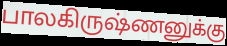
பாலகிருஷ்ணனுக்கு